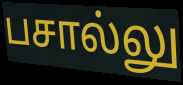
பசால்லு